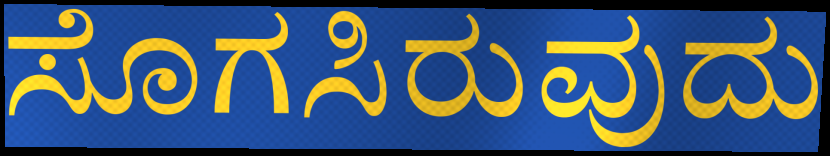
ಸೊಗಸಿರುವುದು